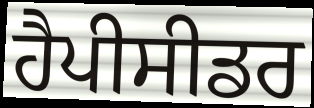
ਹੈਪੀਸੀਡਰ